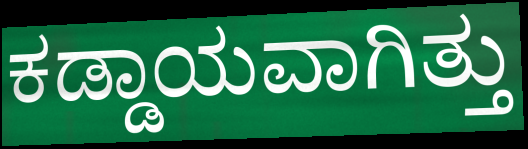
ಕಡ್ಡಾಯವಾಗಿತ್ತು